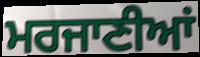
ਮਰਜਾਣੀਆਂ